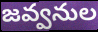
జవ్వనుల